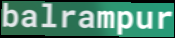
balrampur